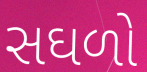
સઘળો